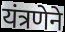
यंत्रणेने